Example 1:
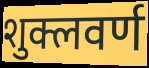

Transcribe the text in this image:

शुक्लवर्ण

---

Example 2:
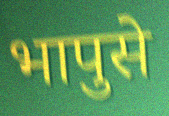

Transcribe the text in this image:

भापुसे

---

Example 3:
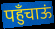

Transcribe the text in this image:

पहुँचाऊं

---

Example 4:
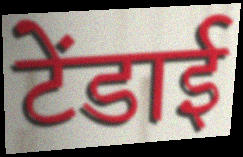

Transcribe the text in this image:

टेंडाई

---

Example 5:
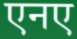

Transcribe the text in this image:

एनए